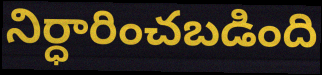
నిర్ధారించబడింది